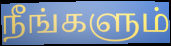
நீங்களும்